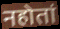
नहोतां